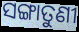
ସଙ୍ଗାତୁଣୀ